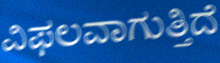
ವಿಫಲವಾಗುತ್ತಿದೆ